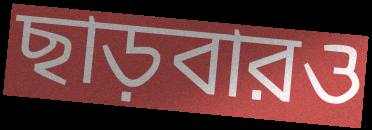
ছাড়বারও